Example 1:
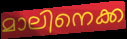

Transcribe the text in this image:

മാലിനെക്ക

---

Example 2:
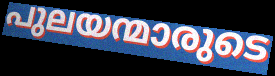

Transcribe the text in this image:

പുലയന്മാരുടെ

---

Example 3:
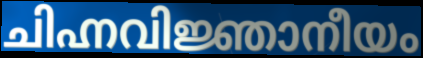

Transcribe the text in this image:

ചിഹ്നവിജ്ഞാനീയം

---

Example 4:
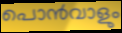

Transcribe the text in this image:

പൊൻവാളും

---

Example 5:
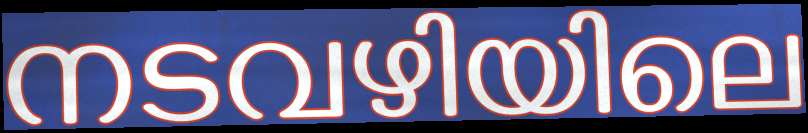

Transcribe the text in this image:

നടവഴിയിലെ